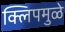
क्लिपमुळे